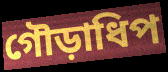
গৌড়াধিপ